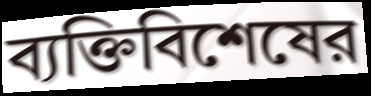
ব্যক্তিবিশেষের